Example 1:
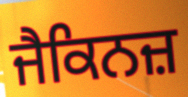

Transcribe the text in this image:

ਜੈਕਿਨਜ਼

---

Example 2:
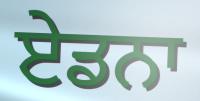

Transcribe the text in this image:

ਏਡਨਾ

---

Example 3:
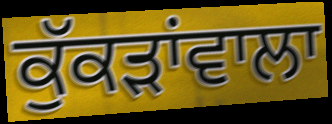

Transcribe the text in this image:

ਕੁੱਕੜਾਂਵਾਲਾ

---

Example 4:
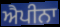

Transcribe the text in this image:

ਐਪੀਨਾ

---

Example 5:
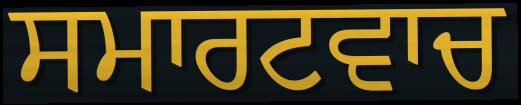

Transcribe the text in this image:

ਸਮਾਰਟਵਾਚ